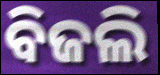
ବିଜଲି